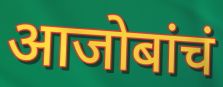
आजोबांचं